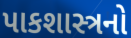
પાકશાસ્ત્રનો